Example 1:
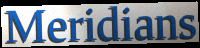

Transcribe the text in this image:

Meridians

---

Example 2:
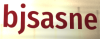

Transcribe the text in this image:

bjsasne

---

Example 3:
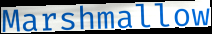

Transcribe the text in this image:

Marshmallow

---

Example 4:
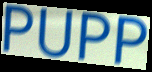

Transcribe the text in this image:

PUPP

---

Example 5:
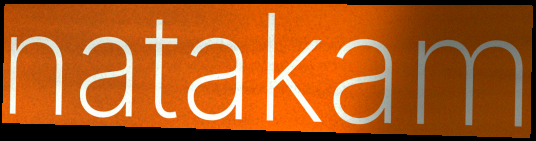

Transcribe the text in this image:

natakam